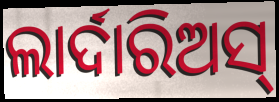
ଲାର୍ଦାରିଅସ୍